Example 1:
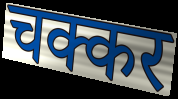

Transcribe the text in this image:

चक्कर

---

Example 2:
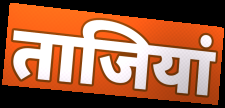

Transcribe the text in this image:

ताजियां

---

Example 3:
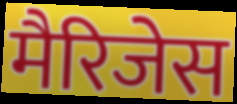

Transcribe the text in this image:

मैरिजेस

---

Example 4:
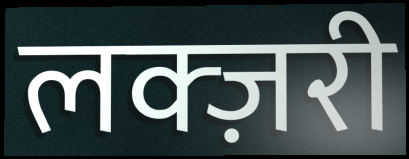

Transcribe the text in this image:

लक्ज़री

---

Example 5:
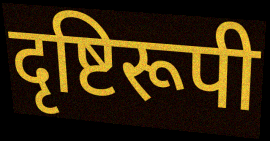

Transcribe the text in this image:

दृष्टिरूपी